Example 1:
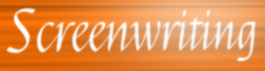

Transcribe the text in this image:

Screenwriting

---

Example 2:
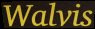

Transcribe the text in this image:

Walvis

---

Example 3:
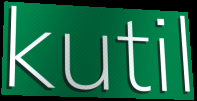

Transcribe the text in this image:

kutil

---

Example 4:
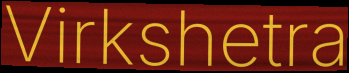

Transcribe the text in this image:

Virkshetra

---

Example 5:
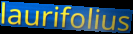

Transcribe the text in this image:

laurifolius